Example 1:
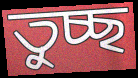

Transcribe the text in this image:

তুচ্ছ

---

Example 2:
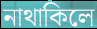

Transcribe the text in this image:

নাথাকিলে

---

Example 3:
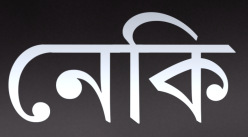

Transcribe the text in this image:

নেকি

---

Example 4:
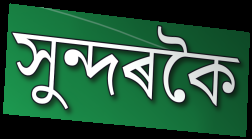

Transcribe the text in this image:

সুন্দৰকৈ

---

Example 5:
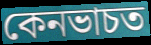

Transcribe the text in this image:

কেনভাচত